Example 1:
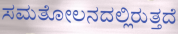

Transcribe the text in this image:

ಸಮತೋಲನದಲ್ಲಿರುತ್ತದೆ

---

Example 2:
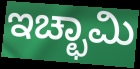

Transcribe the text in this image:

ಇಚ್ಛಾಮಿ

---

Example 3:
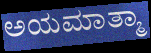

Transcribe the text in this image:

ಅಯಮಾತ್ಮಾ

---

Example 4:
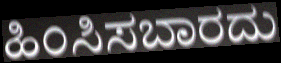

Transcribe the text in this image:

ಹಿಂಸಿಸಬಾರದು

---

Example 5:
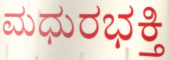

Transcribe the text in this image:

ಮಧುರಭಕ್ತಿ